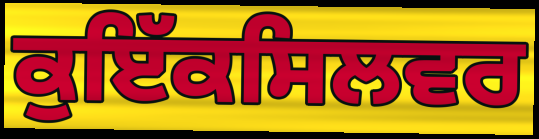
ਕੁਇੱਕਸਿਲਵਰ